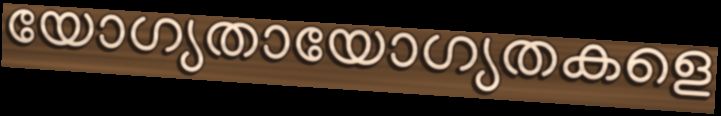
യോഗ്യതായോഗ്യതകളെ